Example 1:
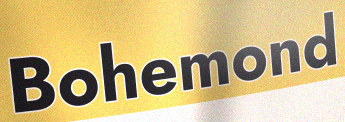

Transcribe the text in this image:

Bohemond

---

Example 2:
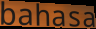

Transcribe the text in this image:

bahasa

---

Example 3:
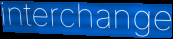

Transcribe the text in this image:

interchange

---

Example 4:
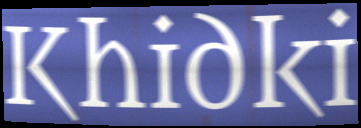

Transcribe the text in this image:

Khidki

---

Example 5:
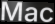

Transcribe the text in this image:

Mac